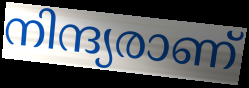
നിന്ദ്യരാണ്